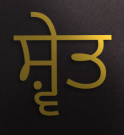
ਸ਼੍ਵੇਤ